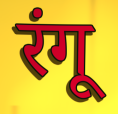
रंगू